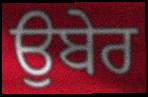
ਉਬੇਰ